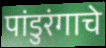
पांडुरंगाचे